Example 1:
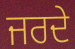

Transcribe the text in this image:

ਜਰਦੇ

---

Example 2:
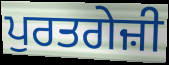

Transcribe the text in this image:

ਪੁਰਤਗੇਜ਼ੀ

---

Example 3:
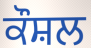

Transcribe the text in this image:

ਕੌਸ਼ਲ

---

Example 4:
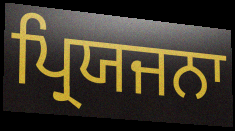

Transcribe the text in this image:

ਪ੍ਰਿਯਜਨਾ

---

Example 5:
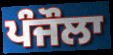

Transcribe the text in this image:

ਪੰਜੌਲਾ